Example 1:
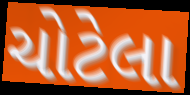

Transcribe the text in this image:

ચોટેલા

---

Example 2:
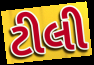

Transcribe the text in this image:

ટીલી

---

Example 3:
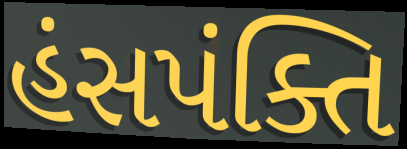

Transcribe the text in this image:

હંસપંક્તિ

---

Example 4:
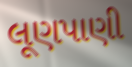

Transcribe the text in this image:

લૂણપાણી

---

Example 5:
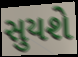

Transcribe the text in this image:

સુયશે